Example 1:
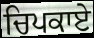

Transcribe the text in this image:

ਚਿਪਕਾਏ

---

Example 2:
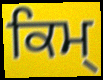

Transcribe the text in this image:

ਕਿਮ੍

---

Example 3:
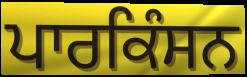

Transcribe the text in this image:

ਪਾਰਕਿੰਸਨ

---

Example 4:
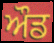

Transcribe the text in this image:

ਔਡ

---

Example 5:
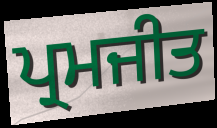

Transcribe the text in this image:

ਪ੍ਰਮਜੀਤ